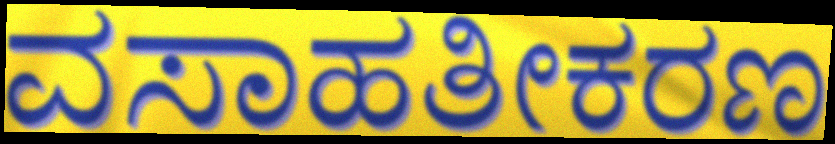
ವಸಾಹತೀಕರಣ